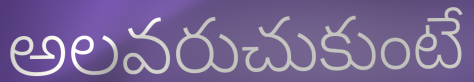
అలవరుచుకుంటే